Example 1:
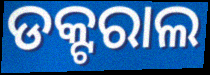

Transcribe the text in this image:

ଡକ୍ଟରାଲ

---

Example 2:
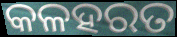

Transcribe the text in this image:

କଳହରତ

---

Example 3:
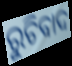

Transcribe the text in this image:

ରୁଚିବାଦ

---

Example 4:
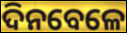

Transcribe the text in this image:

ଦିନବେଳେ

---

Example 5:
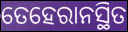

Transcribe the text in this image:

ତେହେରାନସ୍ଥିତ